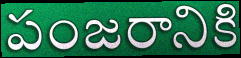
పంజరానికి